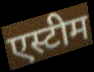
एस्टीम